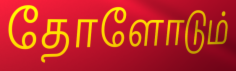
தோளோடும்